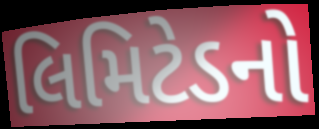
લિમિટેડનો